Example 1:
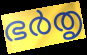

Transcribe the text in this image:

ഭർതൃ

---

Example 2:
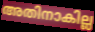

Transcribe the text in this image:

അതിനാകില്ല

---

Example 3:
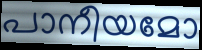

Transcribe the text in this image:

പാനീയമോ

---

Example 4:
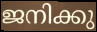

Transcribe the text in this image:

ജനിക്കു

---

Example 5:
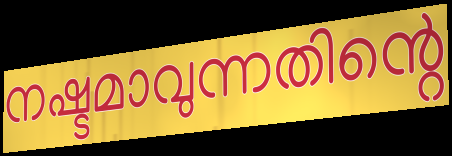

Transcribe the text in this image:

നഷ്ടമാവുന്നതിന്റെ